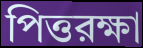
পিত্তরক্ষা